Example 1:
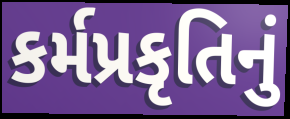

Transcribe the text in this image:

કર્મપ્રકૃતિનું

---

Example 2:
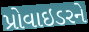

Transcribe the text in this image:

પ્રોવાઇડરને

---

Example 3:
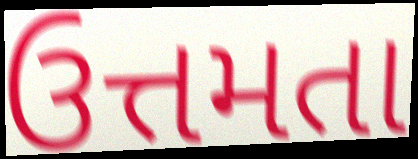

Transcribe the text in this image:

ઉત્તમતા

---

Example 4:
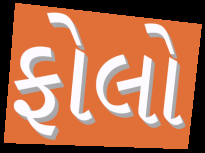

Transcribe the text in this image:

ફોલો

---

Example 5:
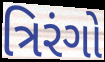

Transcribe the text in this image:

ત્રિરંગો